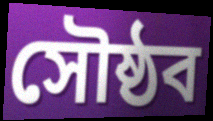
সৌষ্ঠব